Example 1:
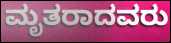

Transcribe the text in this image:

ಮೃತರಾದವರು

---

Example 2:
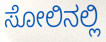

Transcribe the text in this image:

ಸೋಲಿನಲ್ಲಿ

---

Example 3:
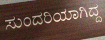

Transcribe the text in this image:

ಸುಂದರಿಯಾಗಿದ್ದ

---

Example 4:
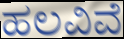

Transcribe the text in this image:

ಹಲವಿವೆ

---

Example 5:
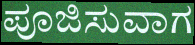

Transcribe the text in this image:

ಪೂಜಿಸುವಾಗ